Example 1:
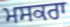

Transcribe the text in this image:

ਮਸਕਰਾ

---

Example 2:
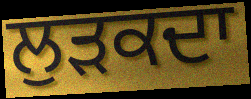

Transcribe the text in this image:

ਲੁੜਕਦਾ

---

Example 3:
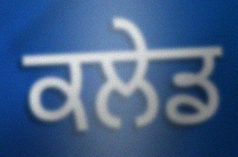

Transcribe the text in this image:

ਕਲੇਡ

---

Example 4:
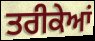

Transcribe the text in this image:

ਤਰੀਕੇਆਂ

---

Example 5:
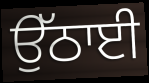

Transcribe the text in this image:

ਉੱਠਾਈ